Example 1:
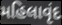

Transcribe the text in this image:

મહિલાવૃંદ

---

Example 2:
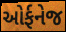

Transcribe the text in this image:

ઓર્ફનેજ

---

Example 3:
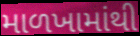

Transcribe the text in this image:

માળખામાંથી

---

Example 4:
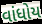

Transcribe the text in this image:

વાંધોય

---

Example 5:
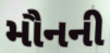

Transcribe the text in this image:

મૌનની